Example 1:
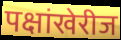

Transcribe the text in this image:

पक्षांखेरीज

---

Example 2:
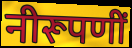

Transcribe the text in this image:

नीरूपणीं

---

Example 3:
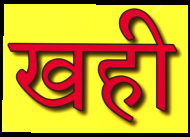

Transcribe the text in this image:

खही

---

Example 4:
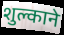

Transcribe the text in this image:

शुल्काने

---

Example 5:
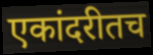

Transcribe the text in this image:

एकांदरीतच